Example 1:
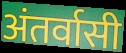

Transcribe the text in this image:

अंतर्वासी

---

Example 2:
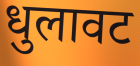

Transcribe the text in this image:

धुलावट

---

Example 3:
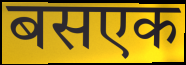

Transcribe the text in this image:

बसएक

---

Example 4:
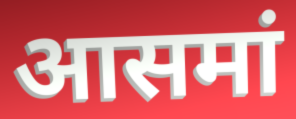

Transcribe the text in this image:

आसमां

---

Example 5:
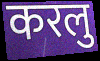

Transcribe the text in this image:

करलु